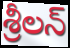
శ్రీలన్